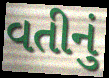
વતીનું